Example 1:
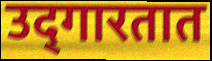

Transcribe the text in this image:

उद्‌गारतात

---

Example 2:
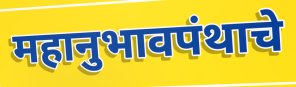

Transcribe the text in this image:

महानुभावपंथाचे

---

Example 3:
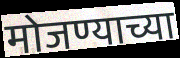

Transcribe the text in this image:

मोजण्याच्या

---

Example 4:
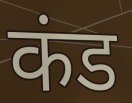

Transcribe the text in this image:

कंड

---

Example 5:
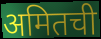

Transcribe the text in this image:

अमितची